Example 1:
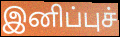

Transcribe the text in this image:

இனிப்புச்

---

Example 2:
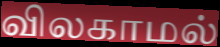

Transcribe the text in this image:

விலகாமல்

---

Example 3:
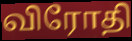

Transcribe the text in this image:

விரோதி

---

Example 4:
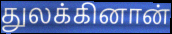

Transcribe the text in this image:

துலக்கினான்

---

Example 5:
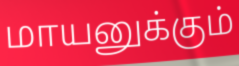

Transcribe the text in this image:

மாயனுக்கும்